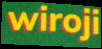
wiroji